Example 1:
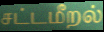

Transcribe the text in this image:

சட்டமீறல்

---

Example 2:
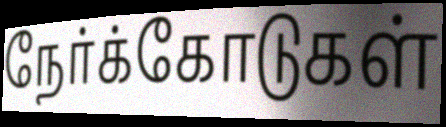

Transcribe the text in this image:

நேர்க்கோடுகள்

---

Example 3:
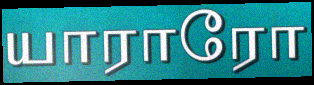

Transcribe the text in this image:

யாராரோ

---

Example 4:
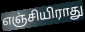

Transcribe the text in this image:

எஞ்சியிராது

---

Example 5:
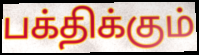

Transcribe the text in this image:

பக்திக்கும்